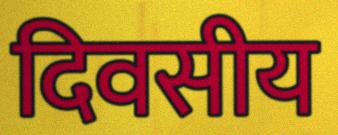
दिवसीय